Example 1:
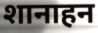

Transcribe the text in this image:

शानाहन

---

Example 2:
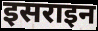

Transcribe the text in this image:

इसराइन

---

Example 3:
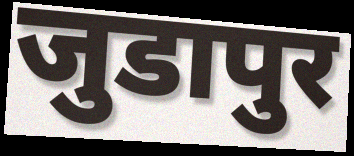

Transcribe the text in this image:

जुडापुर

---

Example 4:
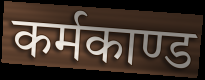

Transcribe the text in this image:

कर्मकाण्ड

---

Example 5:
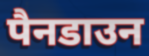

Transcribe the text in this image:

पैनडाउन